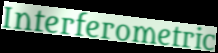
Interferometric